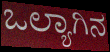
ಒಲ್ಯಾಗಿನ